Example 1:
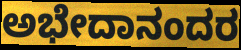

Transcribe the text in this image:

ಅಭೇದಾನಂದರ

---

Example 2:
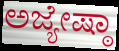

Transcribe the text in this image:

ಅಜ್ಯೇಷ್ಠಾ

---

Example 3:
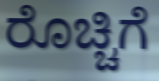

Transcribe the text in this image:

ರೊಚ್ಚಿಗೆ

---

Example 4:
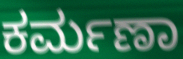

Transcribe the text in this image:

ಕರ್ಮಣಾ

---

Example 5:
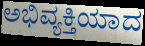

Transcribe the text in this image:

ಅಭಿವ್ಯಕ್ತಿಯಾದ